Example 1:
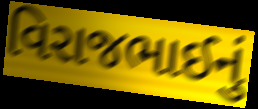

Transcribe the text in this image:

વિરાજભાઈનું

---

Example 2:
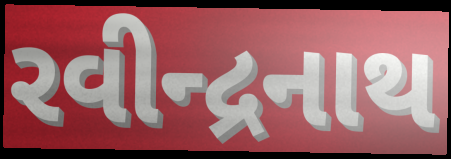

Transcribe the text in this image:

રવીન્દ્રનાથ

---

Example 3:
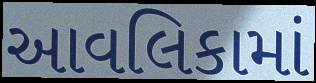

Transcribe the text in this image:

આવલિકામાં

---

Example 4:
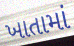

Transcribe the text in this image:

ખાતામાં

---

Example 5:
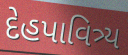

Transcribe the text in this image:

દેહપાવિત્ર્ય